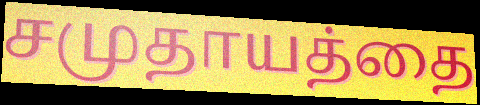
சமுதாயத்தை